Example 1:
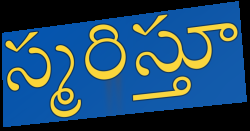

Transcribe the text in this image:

స్మరిస్తూ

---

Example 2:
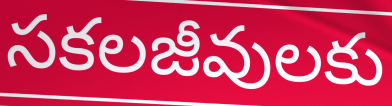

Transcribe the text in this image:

సకలజీవులకు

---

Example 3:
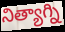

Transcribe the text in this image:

నిత్యాగ్ని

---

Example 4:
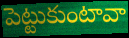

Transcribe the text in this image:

పెట్టుకుంటావా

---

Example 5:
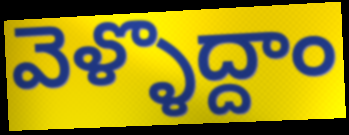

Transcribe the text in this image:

వెళ్ళొద్దాం